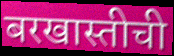
बरखास्तीची